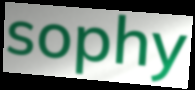
sophy